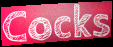
Cocks